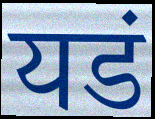
यडं